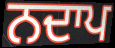
ਨਦਾਪ